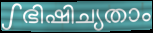
ഽഭിഷിച്യതാം